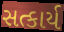
સત્કાર્ય